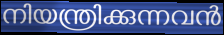
നിയന്ത്രിക്കുന്നവൻ